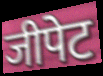
जीपेट